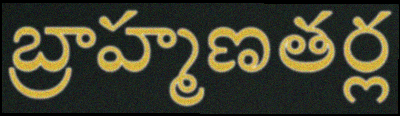
బ్రాహ్మణతర్ల